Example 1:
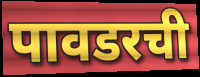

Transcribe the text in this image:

पावडरची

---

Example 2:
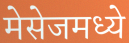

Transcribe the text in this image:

मेसेजमध्ये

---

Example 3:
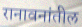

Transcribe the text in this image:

रानावनांतील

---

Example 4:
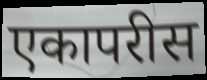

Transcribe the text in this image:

एकापरीस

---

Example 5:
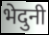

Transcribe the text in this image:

भेदुनी